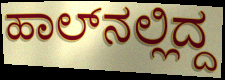
ಹಾಲ್‌ನಲ್ಲಿದ್ದ